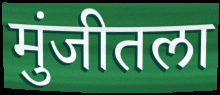
मुंजीतला